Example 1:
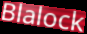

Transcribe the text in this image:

Blalock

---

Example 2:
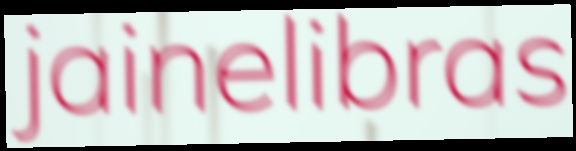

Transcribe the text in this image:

jainelibras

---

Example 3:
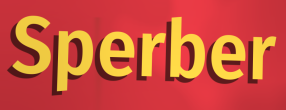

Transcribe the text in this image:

Sperber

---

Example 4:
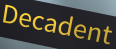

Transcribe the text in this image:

Decadent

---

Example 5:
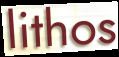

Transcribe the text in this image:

lithos